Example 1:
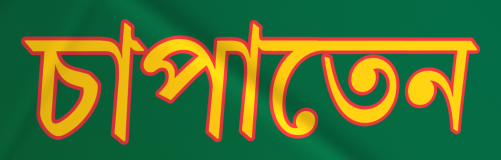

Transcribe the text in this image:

চাপাতেন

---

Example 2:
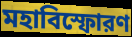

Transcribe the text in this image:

মহাবিস্ফোরণ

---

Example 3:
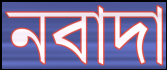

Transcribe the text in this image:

নবাদা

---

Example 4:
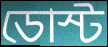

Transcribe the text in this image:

ডোস্ট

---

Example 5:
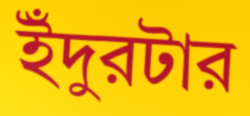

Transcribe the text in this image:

ইঁদুরটার